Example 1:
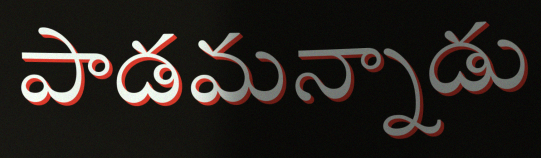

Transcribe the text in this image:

పాడమన్నాడు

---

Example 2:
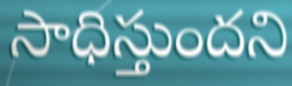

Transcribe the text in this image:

సాధిస్తుందని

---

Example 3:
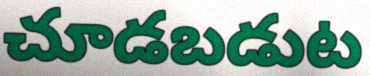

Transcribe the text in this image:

చూడబడుట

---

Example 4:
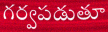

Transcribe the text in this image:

గర్వపడుతూ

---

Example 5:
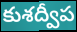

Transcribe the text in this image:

కుశద్వీప